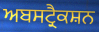
ਅਬਸਟ੍ਰੈਕਸ਼ਨ